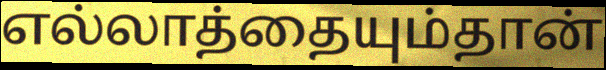
எல்லாத்தையும்தான்